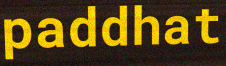
paddhat